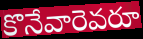
కొనేవారెవరూ